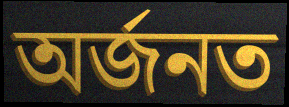
অৰ্জনত